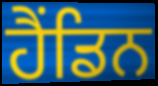
ਹੈਂਡਿਨ